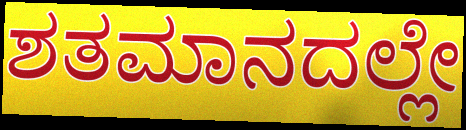
ಶತಮಾನದಲ್ಲೇ